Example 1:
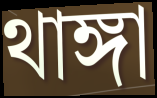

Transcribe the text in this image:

থাঙ্গা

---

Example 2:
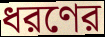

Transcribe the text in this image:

ধরণের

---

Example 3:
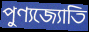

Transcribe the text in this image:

পুণ্যজ্যোতি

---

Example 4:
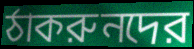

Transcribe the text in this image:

ঠাকরুনদের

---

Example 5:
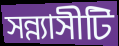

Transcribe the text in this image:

সন্ন্যাসীটি